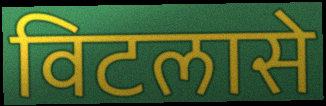
विटलासे